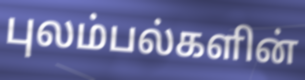
புலம்பல்களின்